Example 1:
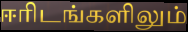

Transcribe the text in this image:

ஈரிடங்களிலும்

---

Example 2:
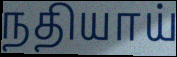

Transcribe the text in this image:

நதியாய்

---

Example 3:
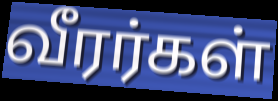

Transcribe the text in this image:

வீரர்கள்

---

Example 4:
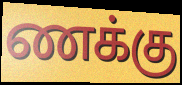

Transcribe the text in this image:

ணக்கு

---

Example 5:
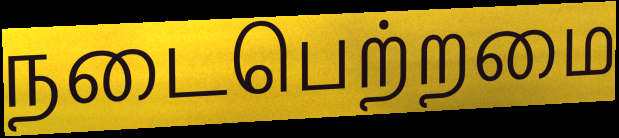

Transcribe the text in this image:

நடைபெற்றமை